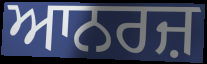
ਆਨਰਜ਼